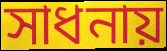
সাধনায়